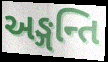
અઙ્ગન્તિ